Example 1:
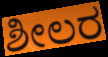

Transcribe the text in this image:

ಶೀಲರ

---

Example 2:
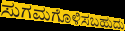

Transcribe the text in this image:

ಸುಗಮಗೊಳಿಸಬಹುದು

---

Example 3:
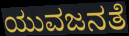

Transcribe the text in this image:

ಯುವಜನತೆ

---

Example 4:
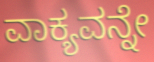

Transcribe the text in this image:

ವಾಕ್ಯವನ್ನೇ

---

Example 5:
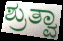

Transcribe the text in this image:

ಶ್ರುತ್ವಾ